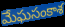
మేఘసంకాశ